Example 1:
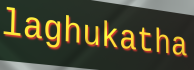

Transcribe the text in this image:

laghukatha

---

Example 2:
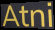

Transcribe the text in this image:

Atni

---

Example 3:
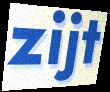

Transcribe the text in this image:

zijt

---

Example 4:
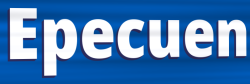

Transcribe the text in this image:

Epecuen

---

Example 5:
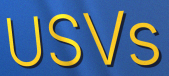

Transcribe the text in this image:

USVs